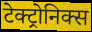
टेक्ट्रोनिक्स